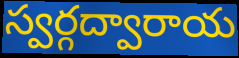
స్వర్గద్వారాయ